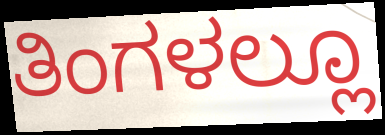
ತಿಂಗಳಲ್ಲೂ